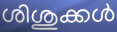
ശിശുക്കൾ